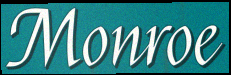
Monroe